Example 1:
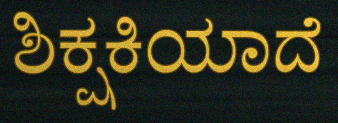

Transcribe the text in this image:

ಶಿಕ್ಷಕಿಯಾದೆ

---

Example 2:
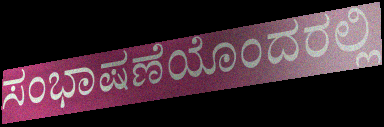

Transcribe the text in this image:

ಸಂಭಾಷಣೆಯೊಂದರಲ್ಲಿ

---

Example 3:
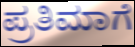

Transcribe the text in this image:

ಪ್ರತಿಮಾಗೆ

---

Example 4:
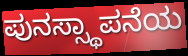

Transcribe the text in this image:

ಪುನಸ್ಸ್ಥಾಪನೆಯ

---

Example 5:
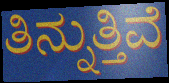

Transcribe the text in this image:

ತಿನ್ನುತ್ತಿವೆ